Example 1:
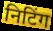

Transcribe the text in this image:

निटिंग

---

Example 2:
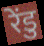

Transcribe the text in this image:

रेंडु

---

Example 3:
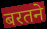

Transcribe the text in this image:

बरतने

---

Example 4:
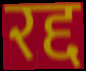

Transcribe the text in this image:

रद्द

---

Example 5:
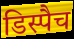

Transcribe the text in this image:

डिस्पैच